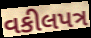
વકીલપત્ર